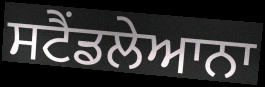
ਸਟੈਂਡਲੇਆਨਾ